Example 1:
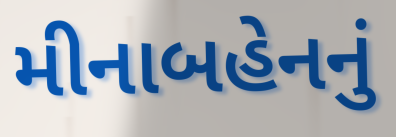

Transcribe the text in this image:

મીનાબહેનનું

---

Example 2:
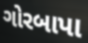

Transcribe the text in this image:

ગોરબાપા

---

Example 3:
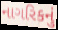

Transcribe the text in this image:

નાગરિકનું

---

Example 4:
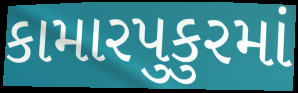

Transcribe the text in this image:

કામારપુકુરમાં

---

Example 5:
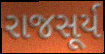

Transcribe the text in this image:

રાજસૂર્ય